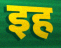
इह